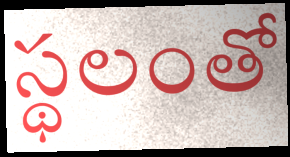
స్థలంతో